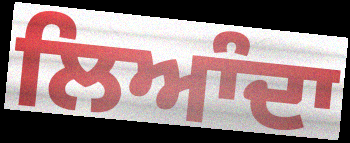
ਲਿਆੰਦਾ